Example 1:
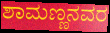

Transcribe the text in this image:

ಶಾಮಣ್ಣನವರ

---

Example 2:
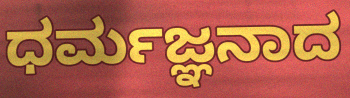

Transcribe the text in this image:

ಧರ್ಮಜ್ಞನಾದ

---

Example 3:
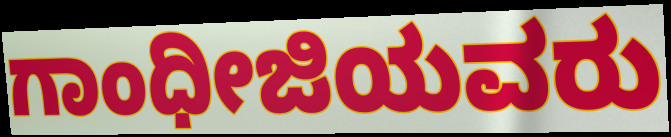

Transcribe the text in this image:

ಗಾಂಧೀಜಿಯವರು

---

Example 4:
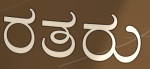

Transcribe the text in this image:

ರತರು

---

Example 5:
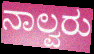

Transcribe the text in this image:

ನಾಲ್ವರು